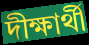
দীক্ষার্থী